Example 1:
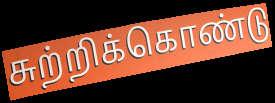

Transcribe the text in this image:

சுற்றிக்கொண்டு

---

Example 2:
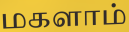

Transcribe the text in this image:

மகளாம்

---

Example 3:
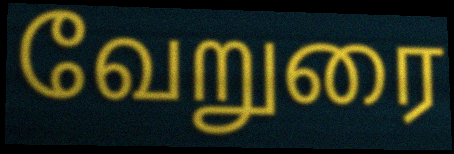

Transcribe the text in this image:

வேறுரை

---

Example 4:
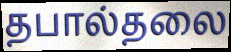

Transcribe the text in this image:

தபால்தலை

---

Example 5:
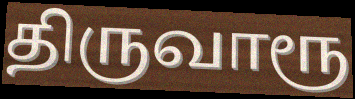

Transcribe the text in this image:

திருவாரூ